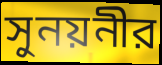
সুনয়নীর